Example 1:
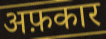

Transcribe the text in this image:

अफ़कार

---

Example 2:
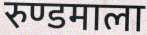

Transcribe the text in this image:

रुण्डमाला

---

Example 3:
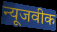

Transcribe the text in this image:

न्यूजवीक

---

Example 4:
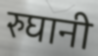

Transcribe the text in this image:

रुघानी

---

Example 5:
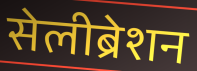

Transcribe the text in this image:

सेलीब्रेशन